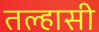
तल्हासी